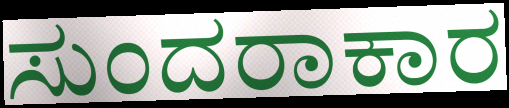
ಸುಂದರಾಕಾರ